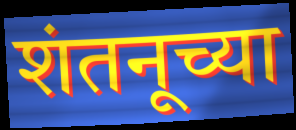
शंतनूच्या